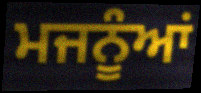
ਮਜਨੂੰਆਂ